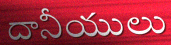
దానీయులు